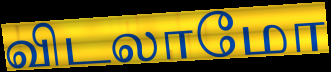
விடலாமோ